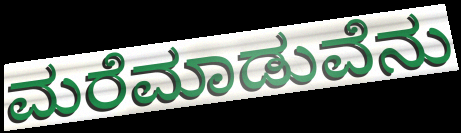
ಮರೆಮಾಡುವೆನು